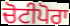
ਚੋਟੀਪੋਰਾ